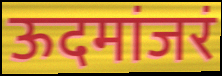
ऊदमांजरं